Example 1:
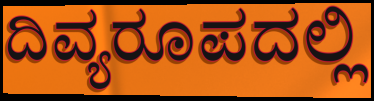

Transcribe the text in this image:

ದಿವ್ಯರೂಪದಲ್ಲಿ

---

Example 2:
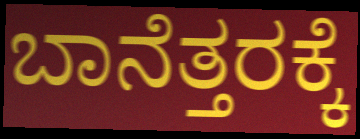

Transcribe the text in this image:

ಬಾನೆತ್ತರಕ್ಕೆ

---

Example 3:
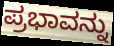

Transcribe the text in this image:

ಪ್ರಭಾವನ್ನು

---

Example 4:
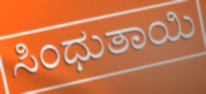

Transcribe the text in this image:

ಸಿಂಧುತಾಯಿ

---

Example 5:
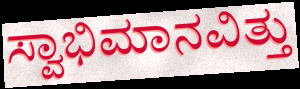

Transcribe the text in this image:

ಸ್ವಾಭಿಮಾನವಿತ್ತು